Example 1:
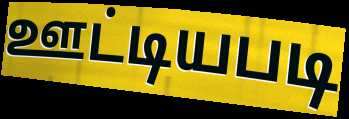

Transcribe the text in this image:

ஊட்டியபடி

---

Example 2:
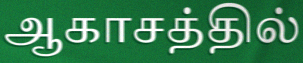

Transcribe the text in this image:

ஆகாசத்தில்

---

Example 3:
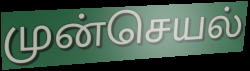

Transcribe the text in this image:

முன்செயல்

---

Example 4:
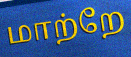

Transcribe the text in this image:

மாற்றே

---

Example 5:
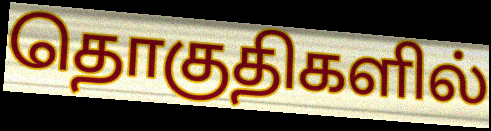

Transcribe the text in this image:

தொகுதிகளில்